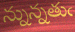
న్నున్నతుఁ